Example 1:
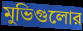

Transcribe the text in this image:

মুভিগুলোর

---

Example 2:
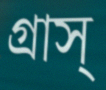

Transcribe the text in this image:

গ্রাস্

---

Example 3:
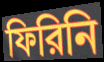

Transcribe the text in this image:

ফিরিনি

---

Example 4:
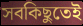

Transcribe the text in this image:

সবকিছুতেই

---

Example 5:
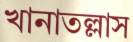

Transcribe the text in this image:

খানাতল্লাস